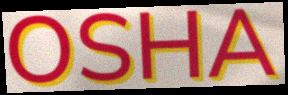
OSHA